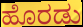
ಹೊರಡು